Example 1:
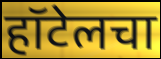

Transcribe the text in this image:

हॉटेलचा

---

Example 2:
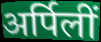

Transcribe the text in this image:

अर्पिलीं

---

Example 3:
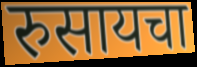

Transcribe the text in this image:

रुसायचा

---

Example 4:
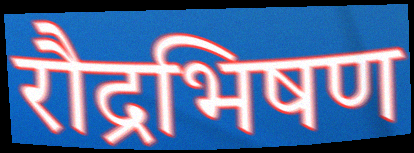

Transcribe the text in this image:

रौद्रभिषण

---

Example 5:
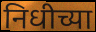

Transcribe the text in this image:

निधीच्या